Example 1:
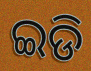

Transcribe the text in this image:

ଇଡି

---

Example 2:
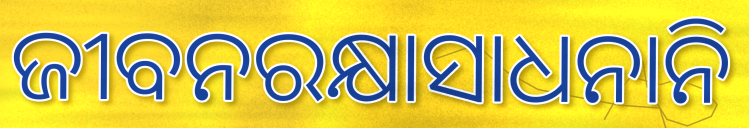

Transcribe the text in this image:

ଜୀବନରକ୍ଷାସାଧନାନି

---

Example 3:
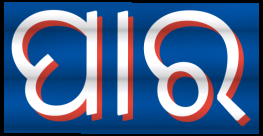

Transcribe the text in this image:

ପାର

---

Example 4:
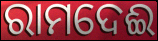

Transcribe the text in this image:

ରାମଦେଈ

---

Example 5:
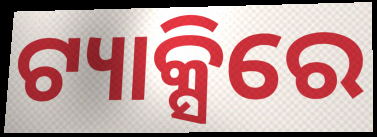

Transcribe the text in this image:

ଟ୍ୟାକ୍ସିରେ